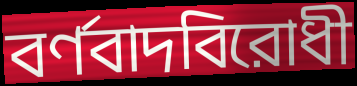
বর্ণবাদবিরোধী